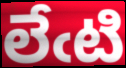
లేఁటి